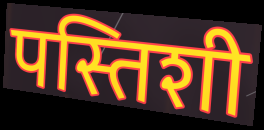
पस्तिशी